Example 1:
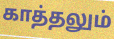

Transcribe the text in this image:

காத்தலும்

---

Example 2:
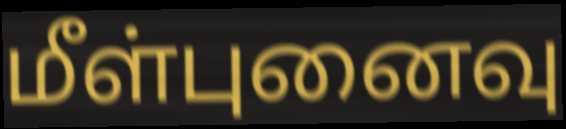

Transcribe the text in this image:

மீள்புனைவு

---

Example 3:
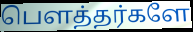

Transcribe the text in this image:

பௌத்தர்களே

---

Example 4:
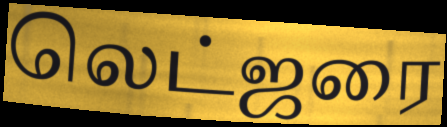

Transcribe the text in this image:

லெட்ஜரை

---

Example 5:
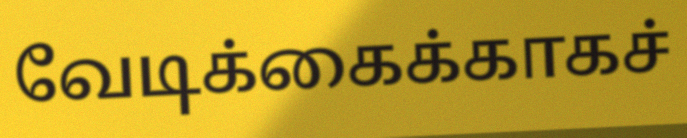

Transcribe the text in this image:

வேடிக்கைக்காகச்